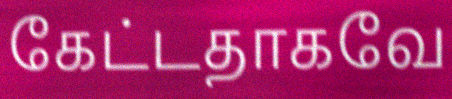
கேட்டதாகவே